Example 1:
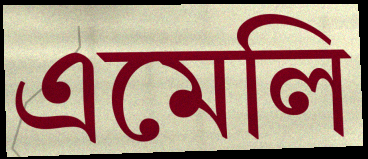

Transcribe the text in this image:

এমেলি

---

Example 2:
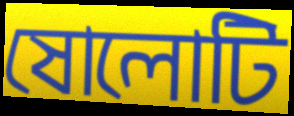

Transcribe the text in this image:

ষোলোটি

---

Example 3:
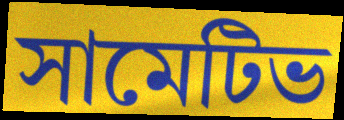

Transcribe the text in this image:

সামেটিভ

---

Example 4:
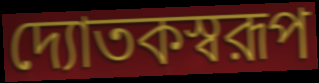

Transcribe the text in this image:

দ্যোতকস্বরূপ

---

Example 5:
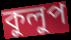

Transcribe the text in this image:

কুলুপ